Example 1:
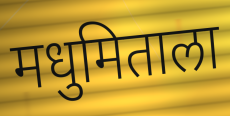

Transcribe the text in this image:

मधुमिताला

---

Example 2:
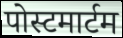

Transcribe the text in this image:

पोस्टमार्टम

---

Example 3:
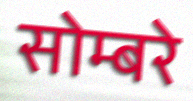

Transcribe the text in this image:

सोम्बरे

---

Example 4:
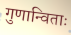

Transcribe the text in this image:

गुणान्विताः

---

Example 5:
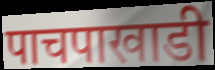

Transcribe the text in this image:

पाचपाखाडी